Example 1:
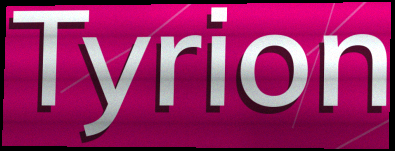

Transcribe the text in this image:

Tyrion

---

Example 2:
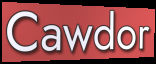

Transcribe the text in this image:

Cawdor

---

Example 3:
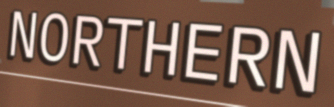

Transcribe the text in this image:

NORTHERN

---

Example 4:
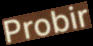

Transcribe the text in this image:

Probir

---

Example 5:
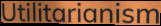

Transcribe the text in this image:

Utilitarianism